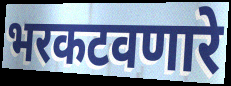
भरकटवणारे